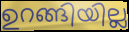
ഉറങ്ങിയില്ല